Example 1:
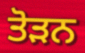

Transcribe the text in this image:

ਤੋੜਨ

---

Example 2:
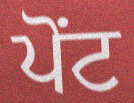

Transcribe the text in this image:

ਪੋਂਟ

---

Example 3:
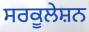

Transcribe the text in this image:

ਸਰਕੂਲੇਸ਼ਨ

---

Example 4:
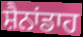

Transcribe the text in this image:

ਸ਼ੈਨਾਂਡਾਹ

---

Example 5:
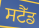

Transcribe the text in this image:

ਸਟੈੱਡ